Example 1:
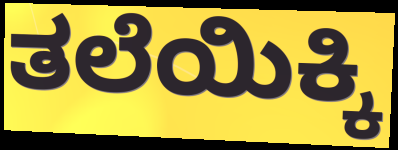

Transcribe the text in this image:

ತಲೆಯಿಕ್ಕಿ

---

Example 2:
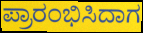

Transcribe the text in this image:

ಪ್ರಾರಂಭಿಸಿದಾಗ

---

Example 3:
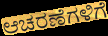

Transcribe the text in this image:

ಆಚರಣೆಗಳಿಗೆ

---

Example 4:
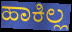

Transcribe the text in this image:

ಹಾಕಿಲ್ಲ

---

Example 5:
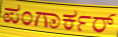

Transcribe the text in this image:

ಪಂಗಾರ್ಕರ್